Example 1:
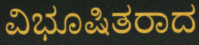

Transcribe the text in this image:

ವಿಭೂಷಿತರಾದ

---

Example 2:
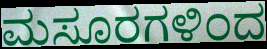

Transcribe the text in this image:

ಮಸೂರಗಳಿಂದ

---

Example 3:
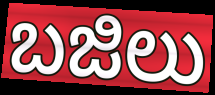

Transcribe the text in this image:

ಬಜಿಲು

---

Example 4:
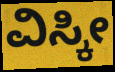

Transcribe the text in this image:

ವಿಸ್ಕೀ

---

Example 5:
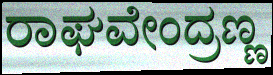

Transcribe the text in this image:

ರಾಘವೇಂದ್ರಣ್ಣ